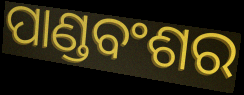
ପାଣ୍ଡବଂଶର